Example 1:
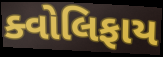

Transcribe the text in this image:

ક્વોલિફાય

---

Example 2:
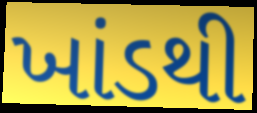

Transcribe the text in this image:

ખાંડથી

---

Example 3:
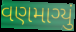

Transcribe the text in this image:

વણમાગ્યું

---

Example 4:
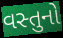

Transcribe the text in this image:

વસ્તુનો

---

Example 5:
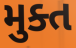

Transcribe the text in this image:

મુક્ત